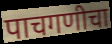
पाचगणीचा